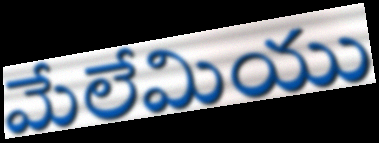
మేలేమియు